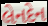
લેનદેન